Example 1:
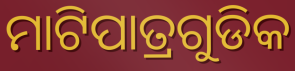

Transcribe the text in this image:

ମାଟିପାତ୍ରଗୁଡିକ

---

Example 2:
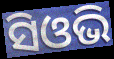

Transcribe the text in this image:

ସିଓଭି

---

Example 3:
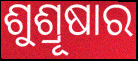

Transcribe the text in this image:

ଶୁଶ୍ରୂଷାର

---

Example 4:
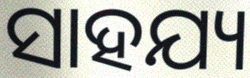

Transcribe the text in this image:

ସାହଯ୍ୟ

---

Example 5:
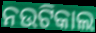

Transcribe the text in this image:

ନଉଟିକାଲ